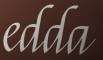
edda